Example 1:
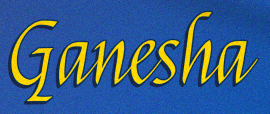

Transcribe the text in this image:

Ganesha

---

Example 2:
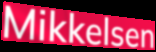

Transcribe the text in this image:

Mikkelsen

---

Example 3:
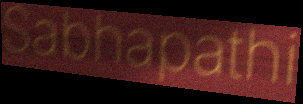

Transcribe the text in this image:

Sabhapathi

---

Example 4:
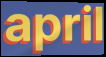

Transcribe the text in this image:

april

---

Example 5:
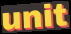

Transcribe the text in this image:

unit